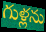
గుళ్లను